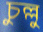
চুল্লু